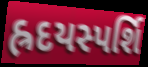
હ્રદયસ્પર્શિ